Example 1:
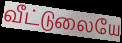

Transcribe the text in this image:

வீட்டுலையே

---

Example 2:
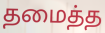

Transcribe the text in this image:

தமைத்த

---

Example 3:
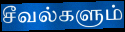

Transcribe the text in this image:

சீவல்களும்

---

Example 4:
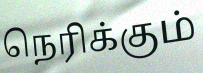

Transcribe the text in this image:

நெரிக்கும்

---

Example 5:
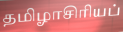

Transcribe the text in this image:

தமிழாசிரியப்